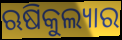
ଋଷିକୁଲ୍ୟାର